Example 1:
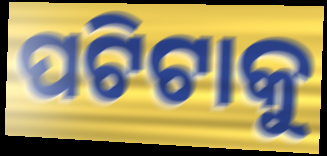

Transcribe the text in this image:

ପଟିଟାକୁ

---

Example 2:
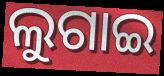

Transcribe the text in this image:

ଲୁଗାଇ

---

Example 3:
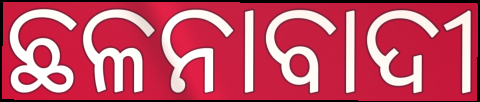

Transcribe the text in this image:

ଛଳନାବାଦୀ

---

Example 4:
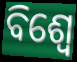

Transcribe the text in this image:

ବିଶ୍ଵେ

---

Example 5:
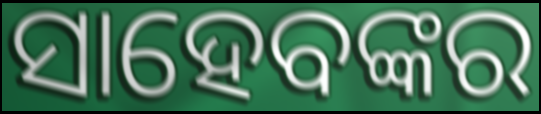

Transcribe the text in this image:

ସାହେବଙ୍କର